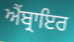
ਐਂਬ੍ਰਾਇਰ